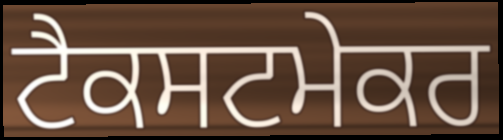
ਟੈਕਸਟਮੇਕਰ